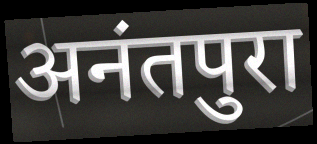
अनंतपुरा